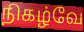
நிகழ்வே